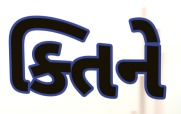
ક્તિને